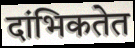
दांभिकतेत